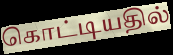
கொட்டியதில்